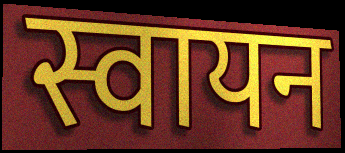
स्वायन